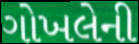
ગોખલેની